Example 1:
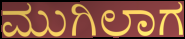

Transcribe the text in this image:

ಮುಗಿಲಾಗ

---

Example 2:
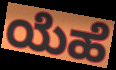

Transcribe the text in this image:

ಯೆಹೆ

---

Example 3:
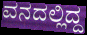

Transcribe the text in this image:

ವನದಲ್ಲಿದ್ದ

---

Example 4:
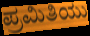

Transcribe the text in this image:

ಪ್ರಮಿತಿಯು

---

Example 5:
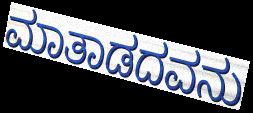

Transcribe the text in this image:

ಮಾತಾಡದವನು